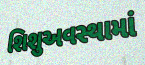
શિશુઅવસ્થામાં